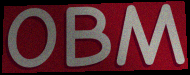
OBM